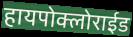
हायपोक्लोराईड